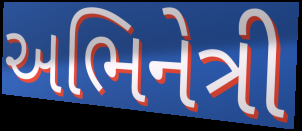
અભિનેત્રી